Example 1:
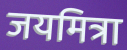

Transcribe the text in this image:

जयमित्रा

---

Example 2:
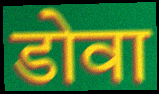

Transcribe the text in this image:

डोवा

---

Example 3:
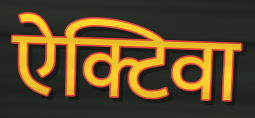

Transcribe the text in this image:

ऐक्टिवा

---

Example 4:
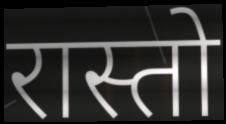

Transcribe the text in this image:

रास्तो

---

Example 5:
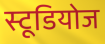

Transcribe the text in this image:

स्टूडियोज